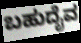
ಬಹುದೈವ